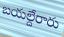
బయల్దేరారు